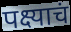
पक्ष्याचं